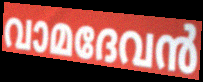
വാമദേവൻ